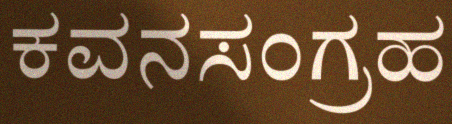
ಕವನಸಂಗ್ರಹ